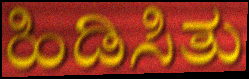
ಹಿಡಿಸಿತು